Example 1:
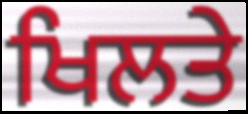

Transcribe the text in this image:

ਖਿਲਤੇ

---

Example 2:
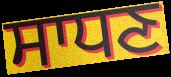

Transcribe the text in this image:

ਸਾਧਣ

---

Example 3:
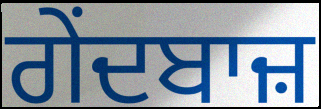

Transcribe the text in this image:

ਗੇਂਦਬਾਜ਼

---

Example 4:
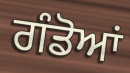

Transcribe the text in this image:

ਗੰਡੋਆਂ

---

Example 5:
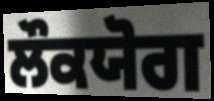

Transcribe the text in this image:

ਲੌਕਯੋਗ